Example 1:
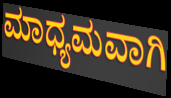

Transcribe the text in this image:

ಮಾಧ್ಯಮವಾಗಿ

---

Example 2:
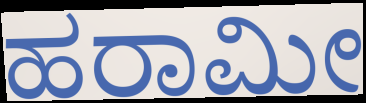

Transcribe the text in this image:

ಹರಾಮೀ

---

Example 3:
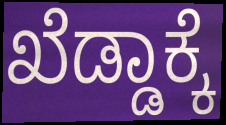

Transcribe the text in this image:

ಖೆಡ್ಡಾಕ್ಕೆ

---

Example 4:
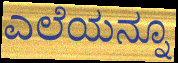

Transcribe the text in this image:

ಎಲೆಯನ್ನೂ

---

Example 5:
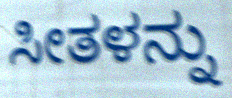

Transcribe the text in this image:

ಸೀತಳನ್ನು